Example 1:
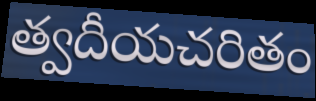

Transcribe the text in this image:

త్వదీయచరితం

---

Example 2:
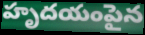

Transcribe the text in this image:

హృదయంపైన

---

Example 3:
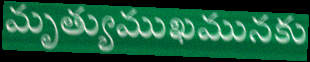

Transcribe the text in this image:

మృత్యుముఖమునకు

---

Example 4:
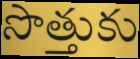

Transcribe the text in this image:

సొత్తుకు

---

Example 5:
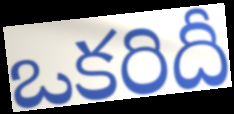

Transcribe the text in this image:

ఒకరిదీ